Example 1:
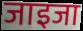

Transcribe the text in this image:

जाइजा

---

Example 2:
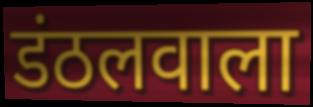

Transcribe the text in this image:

डंठलवाला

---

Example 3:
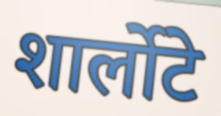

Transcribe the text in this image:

शार्लोटे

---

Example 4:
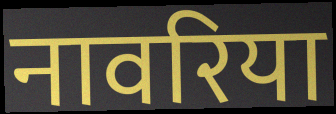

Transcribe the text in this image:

नावरिया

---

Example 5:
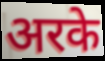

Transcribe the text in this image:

अरके